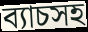
ব্যাচসহ